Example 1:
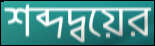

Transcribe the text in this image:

শব্দদ্বয়ের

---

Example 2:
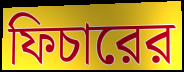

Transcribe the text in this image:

ফিচারের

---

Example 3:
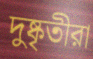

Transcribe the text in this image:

দুষ্কৃতীরা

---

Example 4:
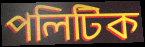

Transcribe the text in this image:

পলিটিক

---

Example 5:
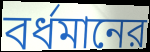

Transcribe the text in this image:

বর্ধমানের